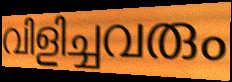
വിളിച്ചവരും